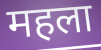
महला